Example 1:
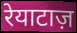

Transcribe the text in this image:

रेयाटाज़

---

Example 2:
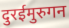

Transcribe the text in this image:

दुरईमुरुगन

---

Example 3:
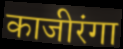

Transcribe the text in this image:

काजीरंगा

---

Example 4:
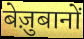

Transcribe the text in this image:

बेज़ुबानों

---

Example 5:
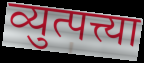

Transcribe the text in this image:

व्युत्पत्त्या